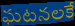
ఘటనలకే